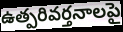
ఉత్పరివర్తనాలపై